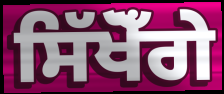
ਸਿੱਖੋਁਗੇ